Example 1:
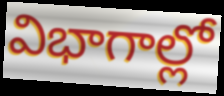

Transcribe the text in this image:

విభాగాల్లో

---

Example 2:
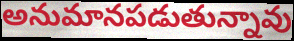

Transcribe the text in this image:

అనుమానపడుతున్నావు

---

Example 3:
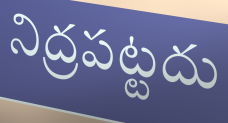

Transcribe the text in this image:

నిద్రపట్టదు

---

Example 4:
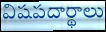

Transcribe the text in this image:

విషపదార్థాలు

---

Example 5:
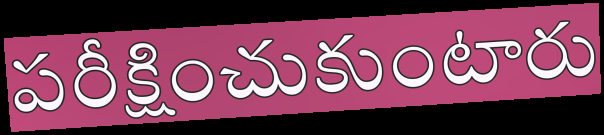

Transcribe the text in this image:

పరీక్షించుకుంటారు